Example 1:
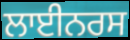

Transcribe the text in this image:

ਲਾਈਨਰਸ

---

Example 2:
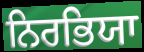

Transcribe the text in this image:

ਨਿਰਭਿਯਾ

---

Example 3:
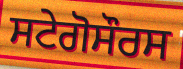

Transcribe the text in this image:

ਸਟੇਗੋਸੌਰਸ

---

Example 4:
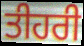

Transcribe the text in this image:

ਤੀਹਰੀ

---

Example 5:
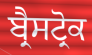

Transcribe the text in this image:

ਬ੍ਰੈਸਟ੍ਰੋਕ